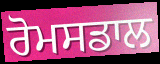
ਰੋਮਸਡਾਲ